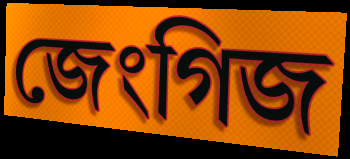
জেংগিজ